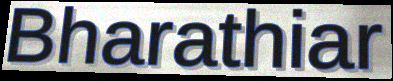
Bharathiar